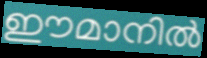
ഈമാനിൽ